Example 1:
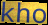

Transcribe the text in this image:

kho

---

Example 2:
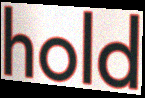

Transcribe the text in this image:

hold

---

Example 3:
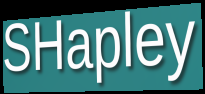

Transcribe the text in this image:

SHapley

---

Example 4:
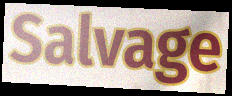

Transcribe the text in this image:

Salvage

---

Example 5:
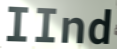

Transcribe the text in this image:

IInd